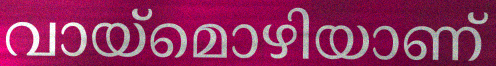
വായ്മൊഴിയാണ്